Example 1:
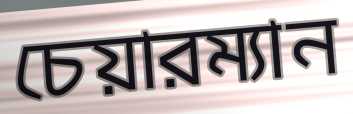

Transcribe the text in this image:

চেয়ারম্যান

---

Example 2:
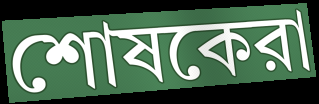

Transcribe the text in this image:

শোষকেরা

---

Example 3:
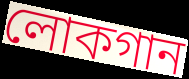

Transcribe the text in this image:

লোকগান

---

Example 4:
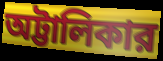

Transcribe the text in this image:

অট্টালিকার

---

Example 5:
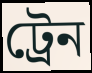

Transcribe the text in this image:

ট্রেন